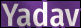
Yadav